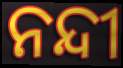
ନନ୍ଦୀ